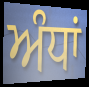
ਅੰਧਾਂ